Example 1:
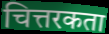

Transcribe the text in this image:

चित्तरकता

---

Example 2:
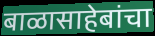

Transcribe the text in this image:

बाळासाहेबांचा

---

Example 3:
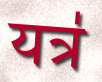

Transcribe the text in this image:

यत्र॑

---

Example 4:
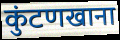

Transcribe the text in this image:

कुंटणखाना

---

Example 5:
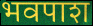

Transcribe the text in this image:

भवपाश